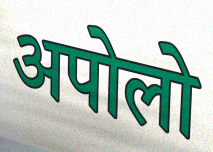
अपोलो